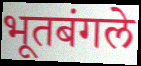
भूतबंगले